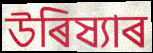
উৰিষ্যাৰ